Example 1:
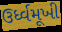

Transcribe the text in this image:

ઉર્ધ્વમૂખી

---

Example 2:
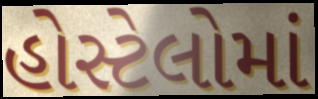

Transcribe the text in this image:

હોસ્ટેલોમાં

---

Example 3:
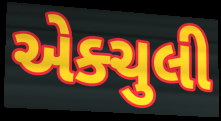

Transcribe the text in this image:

એક્ચુલી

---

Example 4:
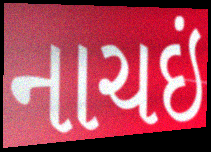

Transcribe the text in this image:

નાચઇં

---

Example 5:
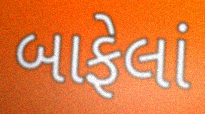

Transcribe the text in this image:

બાફેલાં